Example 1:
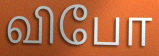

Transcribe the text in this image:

விபோ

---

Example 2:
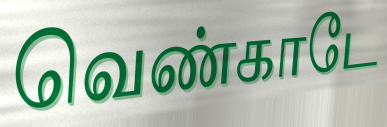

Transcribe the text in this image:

வெண்காடே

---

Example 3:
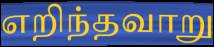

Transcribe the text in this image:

எறிந்தவாறு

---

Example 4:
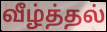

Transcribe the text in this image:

வீழ்த்தல்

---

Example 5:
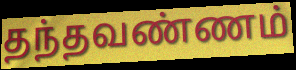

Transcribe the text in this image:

தந்தவண்ணம்